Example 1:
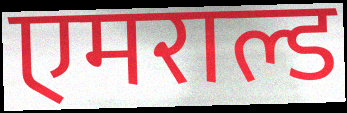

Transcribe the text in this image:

एमराल्ड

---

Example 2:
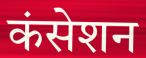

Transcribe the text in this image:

कंसेशन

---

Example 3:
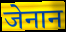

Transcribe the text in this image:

जेनान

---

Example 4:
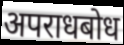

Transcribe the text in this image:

अपराधबोध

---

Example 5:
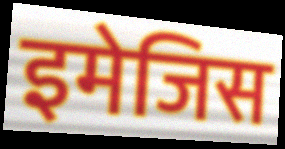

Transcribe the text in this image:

इमेजिस